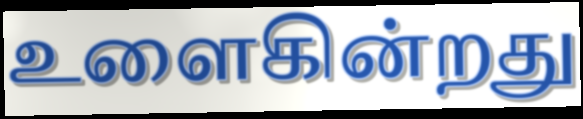
உளைகின்றது